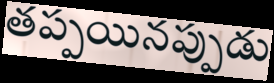
తప్పయినప్పుడు